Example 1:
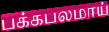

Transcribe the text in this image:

பக்கபலமாய்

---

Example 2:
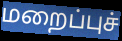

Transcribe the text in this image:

மறைப்புச்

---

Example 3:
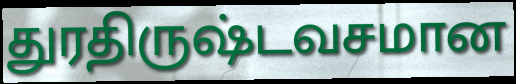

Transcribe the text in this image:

துரதிருஷ்டவசமான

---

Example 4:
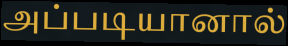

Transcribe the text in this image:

அப்படியானால்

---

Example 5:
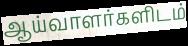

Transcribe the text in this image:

ஆய்வாளர்களிடம்